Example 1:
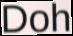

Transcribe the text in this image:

Doh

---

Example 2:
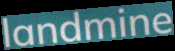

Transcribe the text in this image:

landmine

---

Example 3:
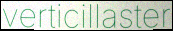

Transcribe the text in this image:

verticillaster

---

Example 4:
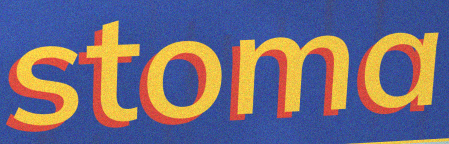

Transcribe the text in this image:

stoma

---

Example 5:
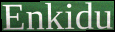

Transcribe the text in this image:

Enkidu